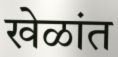
खेळांत